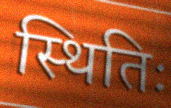
स्थितिः